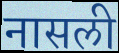
नासली